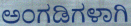
ಅಂಗಡಿಗಳಾಗಿ